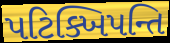
પટિક્ખિપન્તિ